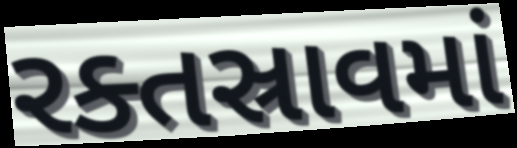
રક્તસ્રાવમાં